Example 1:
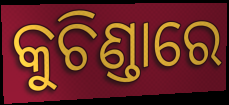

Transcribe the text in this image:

କୁଚିଣ୍ଡାରେ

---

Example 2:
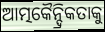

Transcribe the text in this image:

ଆତ୍ମକୈନ୍ଦ୍ରିକତାକୁ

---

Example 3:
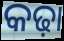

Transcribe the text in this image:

କଢ଼ା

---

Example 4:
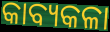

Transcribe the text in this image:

କାବ୍ୟକଳା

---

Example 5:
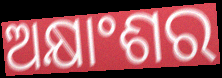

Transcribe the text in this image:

ଅକ୍ଷାଂଶର